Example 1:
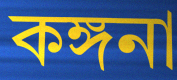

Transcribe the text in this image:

কঙ্গনা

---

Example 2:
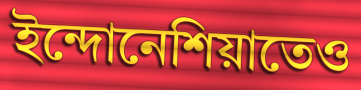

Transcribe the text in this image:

ইন্দোনেশিয়াতেও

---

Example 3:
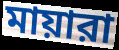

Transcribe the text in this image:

মায়ারা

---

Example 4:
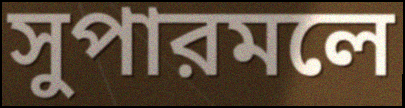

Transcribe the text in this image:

সুপারমলে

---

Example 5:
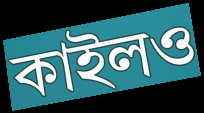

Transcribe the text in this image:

কাইলও